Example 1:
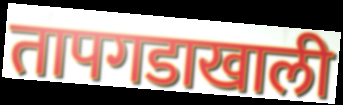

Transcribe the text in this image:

तापगडाखाली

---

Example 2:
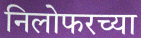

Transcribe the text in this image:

निलोफरच्या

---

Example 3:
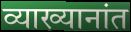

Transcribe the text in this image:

व्याख्यानांत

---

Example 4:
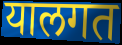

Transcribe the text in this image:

यालगत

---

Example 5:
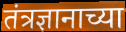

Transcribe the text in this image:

तंत्रज्ञानाच्या